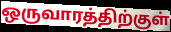
ஒருவாரத்திற்குள்